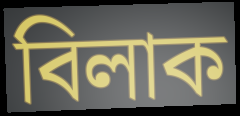
বিলাক